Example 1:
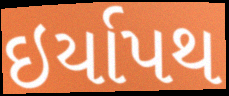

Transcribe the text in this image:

ઇર્યાપથ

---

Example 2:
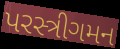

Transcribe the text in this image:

પરસ્ત્રીગમન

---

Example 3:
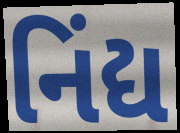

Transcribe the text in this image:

નિંદ્ય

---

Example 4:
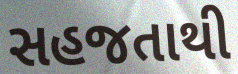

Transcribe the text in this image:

સહજતાથી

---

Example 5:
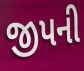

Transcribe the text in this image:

જીપની